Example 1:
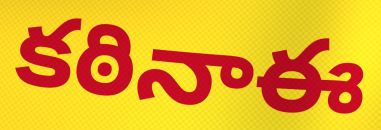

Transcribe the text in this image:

కఠినాఈ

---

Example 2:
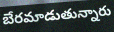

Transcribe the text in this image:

బేరమాడుతున్నారు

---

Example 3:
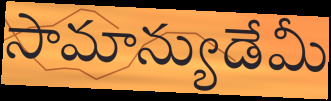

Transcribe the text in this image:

సామాన్యుడేమీ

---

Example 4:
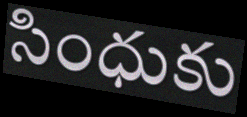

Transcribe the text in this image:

సింధుకు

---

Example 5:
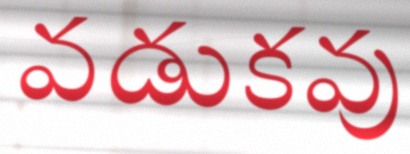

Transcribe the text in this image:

వడుకవు